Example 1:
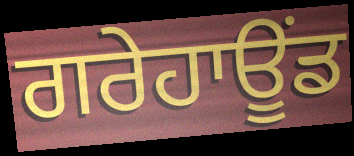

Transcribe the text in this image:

ਗਰੇਹਾਊਂਡ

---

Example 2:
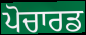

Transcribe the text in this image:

ਪੋਚਾਰਡ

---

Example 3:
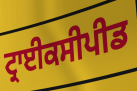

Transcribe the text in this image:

ਟ੍ਰਾਈਕਸੀਪੀਡ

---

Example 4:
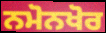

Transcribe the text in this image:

ਨਮੋਨਖੋਰ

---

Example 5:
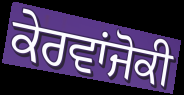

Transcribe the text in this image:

ਕੇਰਵਾਂਜੋਕੀ